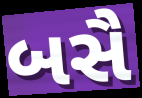
બસૈ